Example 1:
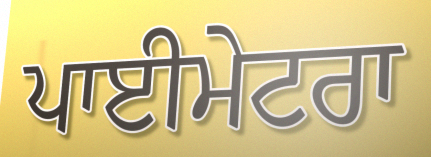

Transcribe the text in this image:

ਪਾਈਮੇਟਰਾ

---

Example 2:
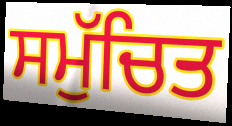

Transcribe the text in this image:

ਸਮੁੱਚਿਤ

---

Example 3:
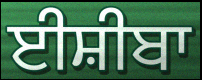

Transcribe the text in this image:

ਈਸ਼ੀਬਾ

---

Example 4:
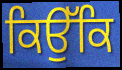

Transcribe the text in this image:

ਕਿਉੱਕਿ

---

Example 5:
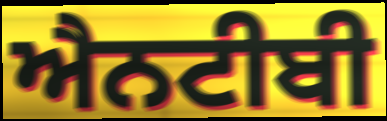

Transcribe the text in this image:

ਐਨਟੀਬੀ